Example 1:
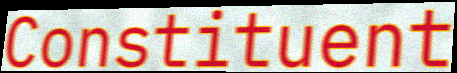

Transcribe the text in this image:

Constituent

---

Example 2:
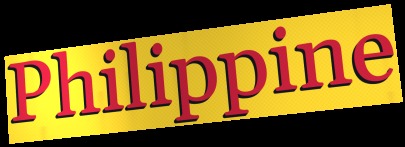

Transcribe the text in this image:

Philippine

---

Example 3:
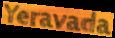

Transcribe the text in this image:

Yeravada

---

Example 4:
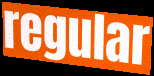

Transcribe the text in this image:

regular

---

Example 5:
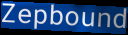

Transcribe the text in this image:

Zepbound